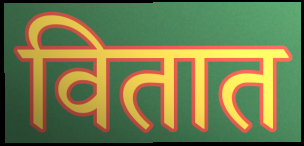
वितात